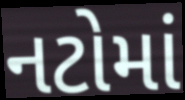
નટોમાં